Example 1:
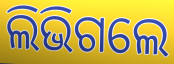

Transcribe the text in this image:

ଲିଭିଗଲେ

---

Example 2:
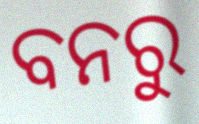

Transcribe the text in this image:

ବନରୁ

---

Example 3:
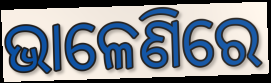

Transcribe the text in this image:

ଭାଳେଣିରେ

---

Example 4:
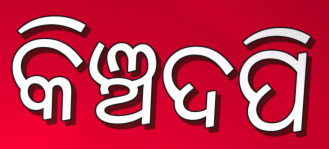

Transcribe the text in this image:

କିଞ୍ଚଦପି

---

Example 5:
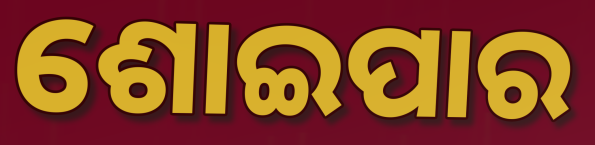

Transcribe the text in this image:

ଶୋଇପାର